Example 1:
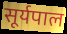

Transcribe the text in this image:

सूर्यपाल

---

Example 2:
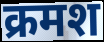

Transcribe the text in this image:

क्रमश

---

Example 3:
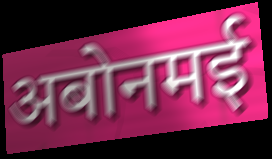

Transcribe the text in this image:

अबोनमई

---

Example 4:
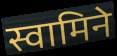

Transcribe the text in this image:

स्वामिने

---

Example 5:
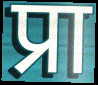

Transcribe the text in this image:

प्रा